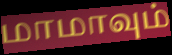
மாமாவும்